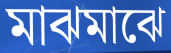
মাঝমাঝে